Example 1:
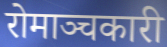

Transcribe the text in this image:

रोमाञ्चकारी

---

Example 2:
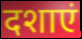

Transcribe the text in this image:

दशाएं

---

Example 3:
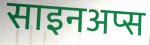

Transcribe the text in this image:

साइनअप्स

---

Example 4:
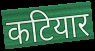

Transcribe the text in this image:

कटियार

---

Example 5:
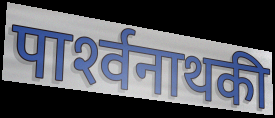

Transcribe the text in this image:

पार्श्वनाथकी